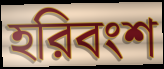
হরিবংশ